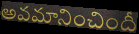
అవమానించిందీ